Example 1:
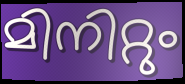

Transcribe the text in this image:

മിനിറ്റും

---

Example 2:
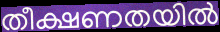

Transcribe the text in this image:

തീക്ഷണതയിൽ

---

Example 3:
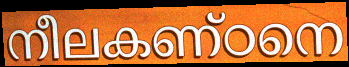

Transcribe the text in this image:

നീലകണ്ഠനെ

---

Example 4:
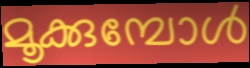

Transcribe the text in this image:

മൂക്കുമ്പോൾ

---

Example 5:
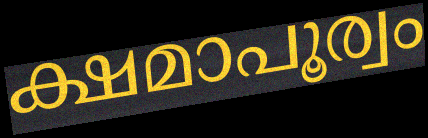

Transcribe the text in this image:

ക്ഷമാപൂര്വം